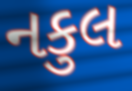
નકુલ